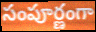
సంపూర్ణంగా